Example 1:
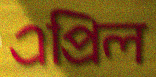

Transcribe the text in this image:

এপ্রিল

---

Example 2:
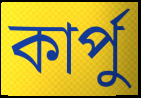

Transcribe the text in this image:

কার্পু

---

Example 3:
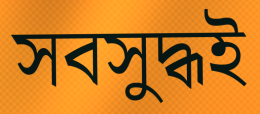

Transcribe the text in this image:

সবসুদ্ধই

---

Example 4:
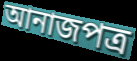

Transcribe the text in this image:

আনাজপত্র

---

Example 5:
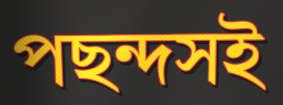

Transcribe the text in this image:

পছন্দসই